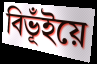
বিভূঁইয়ে